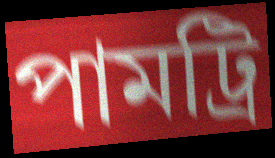
পামট্রি